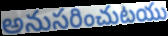
అనుసరించుటయు